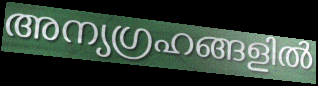
അന്യഗ്രഹങ്ങളിൽ